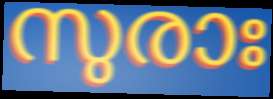
സുരാഃ